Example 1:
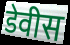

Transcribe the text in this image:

डेवीस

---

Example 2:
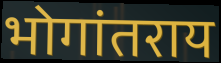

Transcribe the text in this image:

भोगांतराय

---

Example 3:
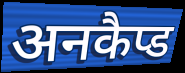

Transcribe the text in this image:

अनकैप्ड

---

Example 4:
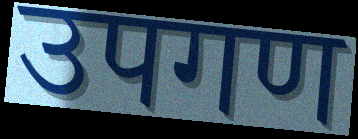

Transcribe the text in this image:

उपगण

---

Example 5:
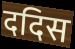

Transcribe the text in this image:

ददिस